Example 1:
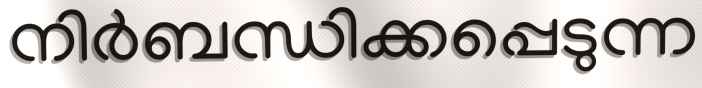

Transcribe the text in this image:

നിർബന്ധിക്കപ്പെടുന്ന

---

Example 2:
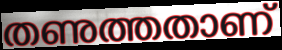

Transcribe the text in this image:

തണുത്തതാണ്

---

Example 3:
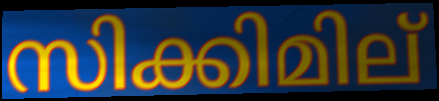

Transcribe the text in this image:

സിക്കിമില്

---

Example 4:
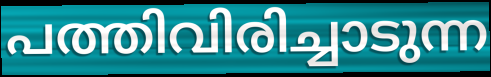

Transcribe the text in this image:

പത്തിവിരിച്ചാടുന്ന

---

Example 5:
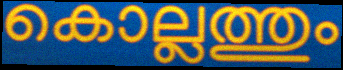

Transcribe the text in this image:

കൊല്ലത്തും